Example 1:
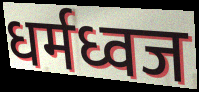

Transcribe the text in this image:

धर्मध्वज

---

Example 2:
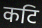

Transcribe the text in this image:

कटि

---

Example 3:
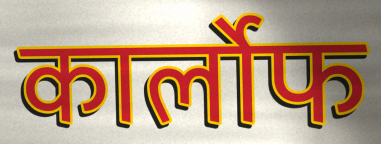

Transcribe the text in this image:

कार्लोफ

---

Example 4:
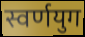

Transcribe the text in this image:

स्वर्णयुग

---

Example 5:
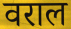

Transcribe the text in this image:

वराल